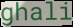
ghali